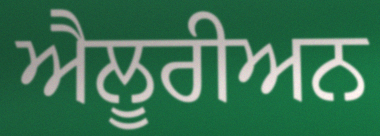
ਐਲੂਰੀਅਨ